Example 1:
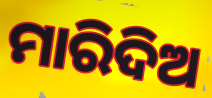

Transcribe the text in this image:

ମାରିଦିଅ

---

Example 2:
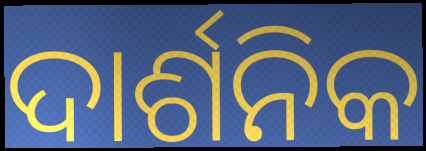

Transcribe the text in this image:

ଦାର୍ଶନିକ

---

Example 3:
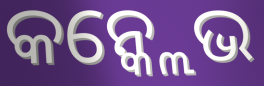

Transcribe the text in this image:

କନ୍କ୍ଲେଭ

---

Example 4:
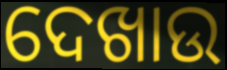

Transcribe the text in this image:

ଦେଖାଉ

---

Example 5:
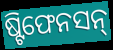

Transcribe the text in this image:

ଷ୍ଟିଫେନସନ୍